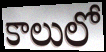
కాలులో